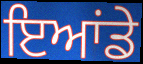
ਇਆਂਡੇ